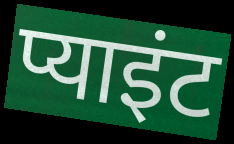
प्याइंट